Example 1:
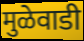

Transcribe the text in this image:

मुळेवाडी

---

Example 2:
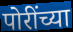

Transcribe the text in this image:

पोरींच्या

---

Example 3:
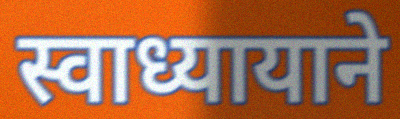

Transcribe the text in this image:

स्वाध्यायाने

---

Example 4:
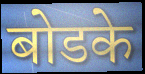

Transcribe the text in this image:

बोडके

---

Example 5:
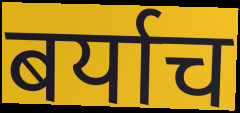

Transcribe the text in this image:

बर्याच